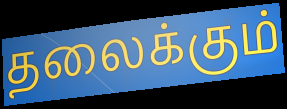
தலைக்கும்